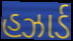
હઝાર્ડ